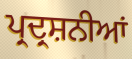
ਪ੍ਰਦ੍ਰਸ਼ਨੀਆਂ